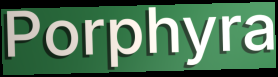
Porphyra